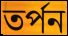
তর্পন